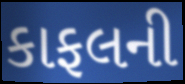
કાફલની